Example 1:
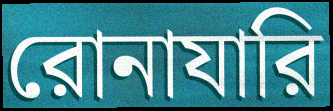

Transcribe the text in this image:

রোনাযারি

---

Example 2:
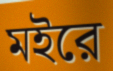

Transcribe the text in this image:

মইরে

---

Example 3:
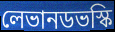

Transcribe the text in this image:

লেভানডভস্কি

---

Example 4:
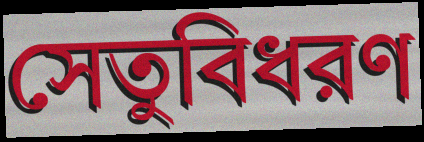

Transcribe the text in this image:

সেতুবিধরণ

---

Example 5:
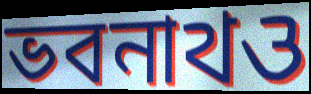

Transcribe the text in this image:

ভবনাথও